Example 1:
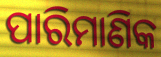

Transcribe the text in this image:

ପାରିମାଣିକ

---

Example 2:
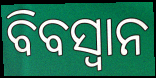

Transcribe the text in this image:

ବିବସ୍ୱାନ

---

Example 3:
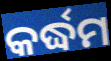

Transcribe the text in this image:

କର୍ଦ୍ଧମ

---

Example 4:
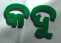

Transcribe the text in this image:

କଦୁ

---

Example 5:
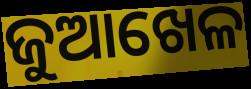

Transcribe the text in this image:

ଜୁଆଖେଳ